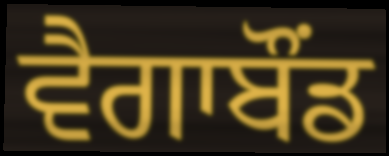
ਵੈਗਾਬੌਂਡ